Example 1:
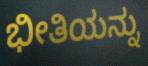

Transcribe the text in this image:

ಭೀತಿಯನ್ನು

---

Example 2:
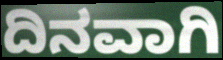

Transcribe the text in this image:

ದಿನವಾಗಿ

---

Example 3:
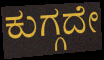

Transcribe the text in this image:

ಕುಗ್ಗದೇ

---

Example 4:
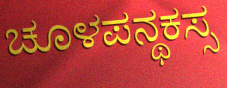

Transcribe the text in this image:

ಚೂಳಪನ್ಥಕಸ್ಸ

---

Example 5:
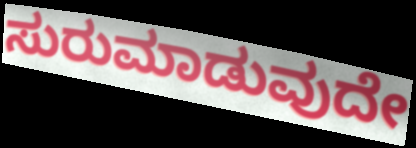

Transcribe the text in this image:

ಸುರುಮಾಡುವುದೇ